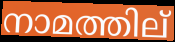
നാമത്തില്